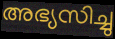
അഭ്യസിച്ചു